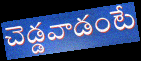
చెడ్డవాడంటే